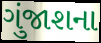
ગુંજાશના